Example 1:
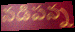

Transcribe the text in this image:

నడిపన్న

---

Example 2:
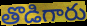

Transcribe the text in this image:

తొడిగారు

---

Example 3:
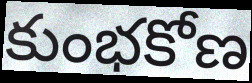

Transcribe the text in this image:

కుంభకోణ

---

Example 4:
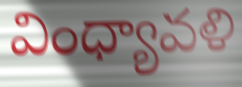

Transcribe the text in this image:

వింధ్యావళి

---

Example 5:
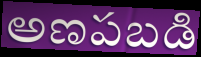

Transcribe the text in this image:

అణపబడి